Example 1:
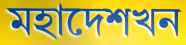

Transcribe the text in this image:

মহাদেশখন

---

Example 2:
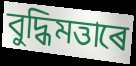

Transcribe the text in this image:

বুদ্ধিমত্তাৰে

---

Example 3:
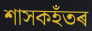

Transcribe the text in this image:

শাসকহঁতৰ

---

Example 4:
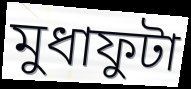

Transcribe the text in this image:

মুধাফুটা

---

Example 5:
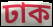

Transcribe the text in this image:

ঢাক